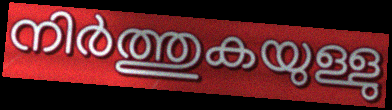
നിർത്തുകയുള്ളു